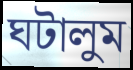
ঘটালুম